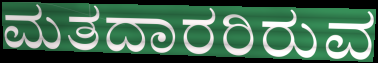
ಮತದಾರರಿರುವ